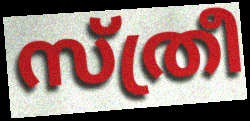
സ്ത്രീ